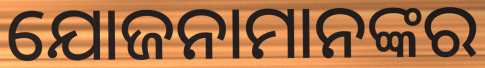
ଯୋଜନାମାନଙ୍କର